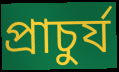
প্রাচুর্য